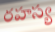
రహస్య